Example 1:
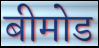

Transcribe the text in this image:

बीमोड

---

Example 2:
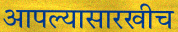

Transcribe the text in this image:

आपल्यासारखीच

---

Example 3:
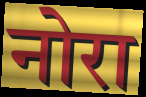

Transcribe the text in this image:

नोरा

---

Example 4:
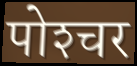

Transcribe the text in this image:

पोश्चर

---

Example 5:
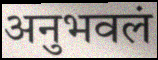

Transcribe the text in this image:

अनुभवलं